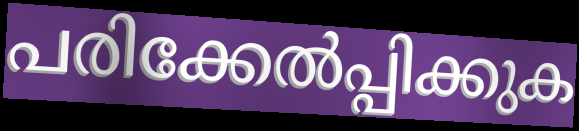
പരിക്കേൽപ്പിക്കുക